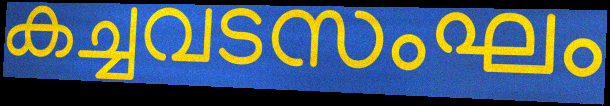
കച്ചവടസംഘം